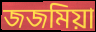
জজমিয়া